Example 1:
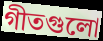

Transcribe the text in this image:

গীতগুলো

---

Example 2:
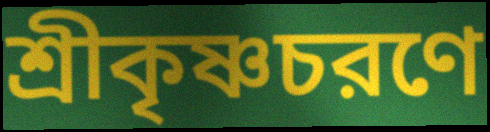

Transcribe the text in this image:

শ্রীকৃষ্ণচরণে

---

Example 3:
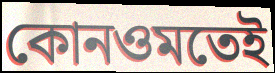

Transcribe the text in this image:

কোনওমতেই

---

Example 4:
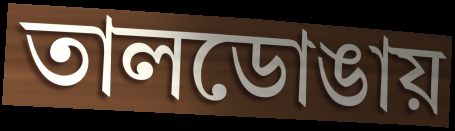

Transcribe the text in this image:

তালডোঙায়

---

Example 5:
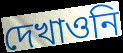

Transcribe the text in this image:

দেখাওনি